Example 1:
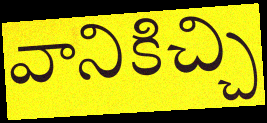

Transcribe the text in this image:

వానికిచ్చి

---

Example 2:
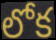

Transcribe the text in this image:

లోక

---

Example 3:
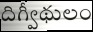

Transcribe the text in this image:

దిగ్వీథులం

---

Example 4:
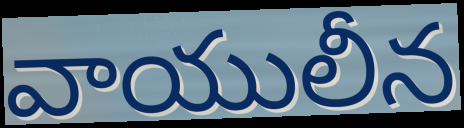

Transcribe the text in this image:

వాయులీన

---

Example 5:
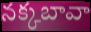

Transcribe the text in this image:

నక్కబావా